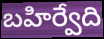
బహిర్వేది